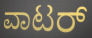
ವಾಟರ್